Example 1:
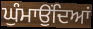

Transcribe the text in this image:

ਘੁੰਮਾਉਂਦਿਆਂ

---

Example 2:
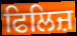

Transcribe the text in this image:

ਫਿਲਿਜ਼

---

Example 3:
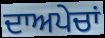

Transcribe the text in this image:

ਦਾਅਪੇਚਾਂ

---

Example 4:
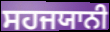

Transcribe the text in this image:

ਸਹਜਯਾਨੀ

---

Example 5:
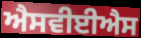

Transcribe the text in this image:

ਐਸਵੀਈਐਸ